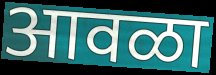
आवळा